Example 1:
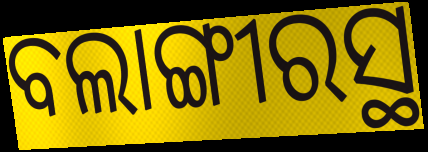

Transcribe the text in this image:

ବଲାଙ୍ଗୀରସ୍ଥ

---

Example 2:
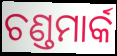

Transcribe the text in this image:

ଚଣ୍ଡମାର୍କ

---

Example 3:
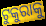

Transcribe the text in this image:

ଟୁକୁରାକୁ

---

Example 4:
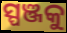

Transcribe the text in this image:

ସ୍ପଞ୍ଜକୁ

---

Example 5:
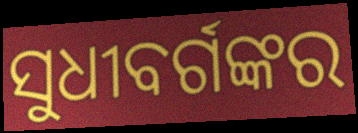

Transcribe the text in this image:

ସୁଧୀବର୍ଗଙ୍କର